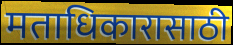
मताधिकारासाठी